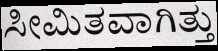
ಸೀಮಿತವಾಗಿತ್ತು